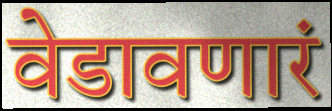
वेडावणारं